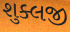
શુક્લજી